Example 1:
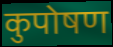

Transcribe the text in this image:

कुपोषण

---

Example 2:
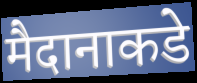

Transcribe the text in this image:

मैदानाकडे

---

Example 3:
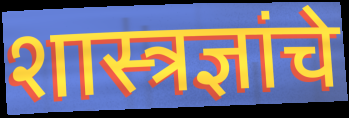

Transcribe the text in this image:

शास्त्रज्ञांचे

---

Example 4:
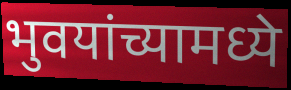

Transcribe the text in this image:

भुवयांच्यामध्ये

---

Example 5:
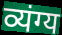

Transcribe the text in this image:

व्यंग्य